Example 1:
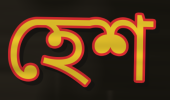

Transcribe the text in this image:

হেশ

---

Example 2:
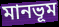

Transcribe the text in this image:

মানভূম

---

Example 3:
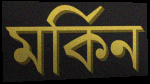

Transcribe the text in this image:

মর্কিন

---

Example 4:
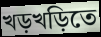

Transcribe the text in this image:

খড়খড়িতে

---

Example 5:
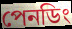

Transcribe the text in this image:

পেনডিং